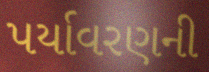
પર્યાવરણની